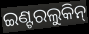
ଇଣ୍ଟରଲୁକିନ୍